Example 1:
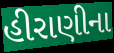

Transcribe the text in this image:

હીરાણીના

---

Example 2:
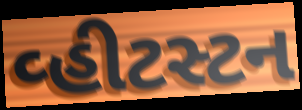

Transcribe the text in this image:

વ્હીટસ્ટન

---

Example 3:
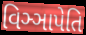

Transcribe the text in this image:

વિઞ્ઞાપેતિ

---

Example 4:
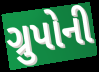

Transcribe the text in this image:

ગ્રુપોની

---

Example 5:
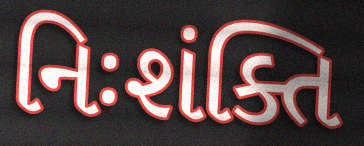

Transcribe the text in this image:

નિઃશંક્તિ